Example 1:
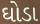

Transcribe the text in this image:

ઘોડા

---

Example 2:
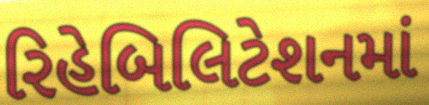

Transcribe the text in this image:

રિહેબિલિટેશનમાં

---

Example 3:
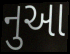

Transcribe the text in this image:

નુઆ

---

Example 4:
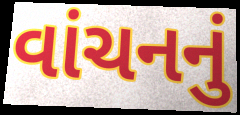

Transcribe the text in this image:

વાંચનનું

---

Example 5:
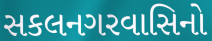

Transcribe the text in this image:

સકલનગરવાસિનો